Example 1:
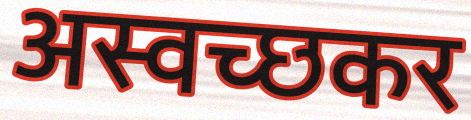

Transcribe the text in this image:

अस्वच्छकर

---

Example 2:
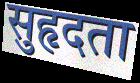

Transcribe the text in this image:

सुहृदता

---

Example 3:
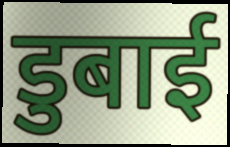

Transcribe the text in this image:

डुबाई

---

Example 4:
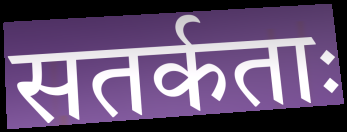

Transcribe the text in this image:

सतर्कताः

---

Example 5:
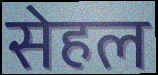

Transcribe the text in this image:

सेहल